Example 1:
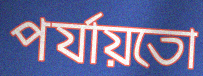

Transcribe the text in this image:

পৰ্যায়তো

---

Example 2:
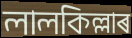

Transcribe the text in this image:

লালকিল্লাৰ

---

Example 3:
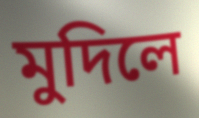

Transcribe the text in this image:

মুদিলে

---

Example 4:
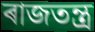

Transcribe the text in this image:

ৰাজতন্ত্ৰ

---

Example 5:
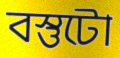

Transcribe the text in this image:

বস্তুটো